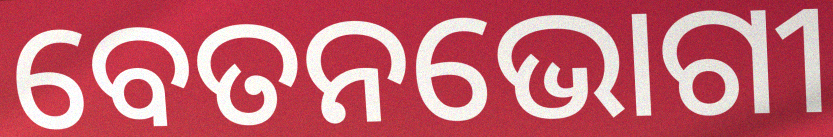
ବେତନଭୋଗୀ